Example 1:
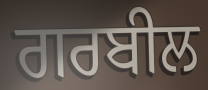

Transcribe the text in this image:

ਗਰਬੀਲ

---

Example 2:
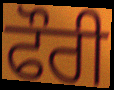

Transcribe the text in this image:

ਫੌਰੀ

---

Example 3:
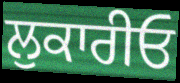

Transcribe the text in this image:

ਲੁਕਾਰੀਓ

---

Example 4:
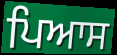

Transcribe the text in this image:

ਪਿਆਸ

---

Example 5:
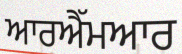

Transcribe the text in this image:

ਆਰਐੱਮਆਰ